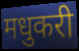
मधुकरी